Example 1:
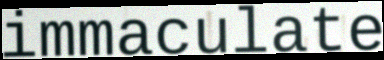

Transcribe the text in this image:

immaculate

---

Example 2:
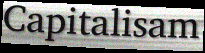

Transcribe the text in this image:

Capitalisam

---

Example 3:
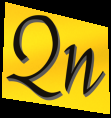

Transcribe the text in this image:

Qn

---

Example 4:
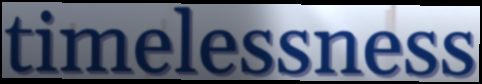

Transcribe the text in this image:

timelessness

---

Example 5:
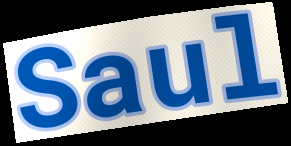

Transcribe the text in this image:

Saul